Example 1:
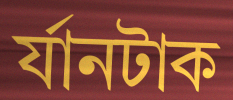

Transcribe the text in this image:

র্যানটাক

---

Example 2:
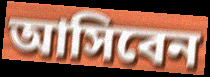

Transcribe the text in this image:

আসিবেন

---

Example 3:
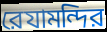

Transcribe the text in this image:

রেযামন্দির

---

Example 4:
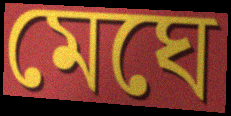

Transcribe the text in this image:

মেঘে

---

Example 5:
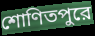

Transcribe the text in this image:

শোণিতপুরে